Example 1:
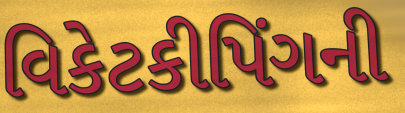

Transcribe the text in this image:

વિકેટકીપિંગની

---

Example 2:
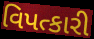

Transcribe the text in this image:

વિપત્કારી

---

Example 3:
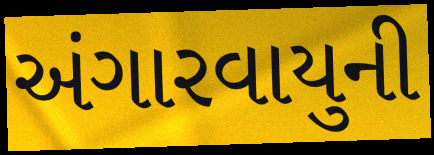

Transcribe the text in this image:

અંગારવાયુની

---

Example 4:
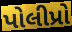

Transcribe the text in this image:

પોલીપ્રો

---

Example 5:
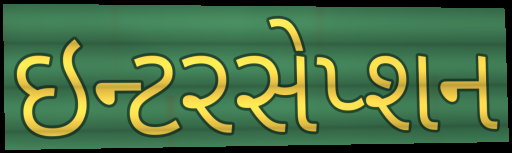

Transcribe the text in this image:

ઇન્ટરસેપ્શન